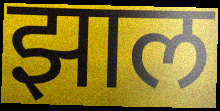
झाल